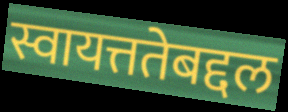
स्वायत्ततेबद्दल